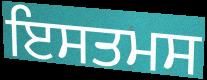
ਇਸਤਮਸ